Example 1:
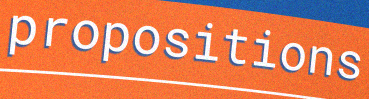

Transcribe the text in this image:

propositions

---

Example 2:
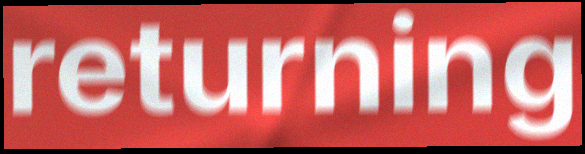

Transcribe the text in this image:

returning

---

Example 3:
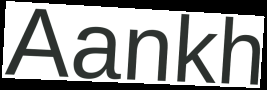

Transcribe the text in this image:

Aankh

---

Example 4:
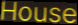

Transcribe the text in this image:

House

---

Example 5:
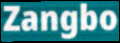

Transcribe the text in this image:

Zangbo